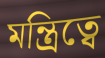
মন্ত্রিত্বে